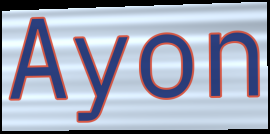
Ayon